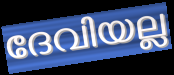
ദേവിയല്ല